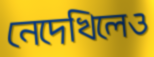
নেদেখিলেও